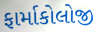
ફાર્માકોલોજી